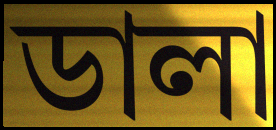
ডালা